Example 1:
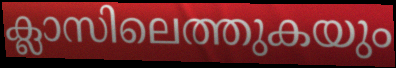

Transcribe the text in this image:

ക്ലാസിലെത്തുകയും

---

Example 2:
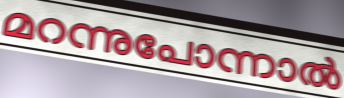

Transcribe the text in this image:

മറന്നുപോന്നാൽ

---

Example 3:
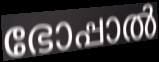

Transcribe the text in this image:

ഭോപ്പാൽ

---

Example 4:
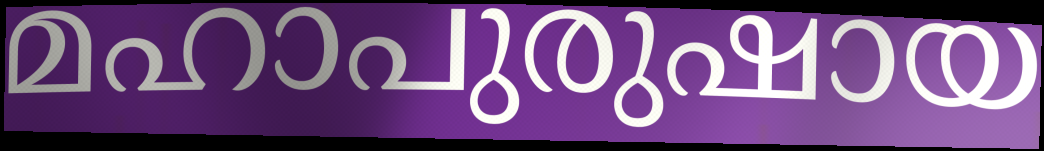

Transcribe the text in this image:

മഹാപുരുഷായ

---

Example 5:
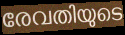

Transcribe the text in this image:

രേവതിയുടെ